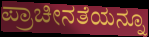
ಪ್ರಾಚೀನತೆಯನ್ನೂ